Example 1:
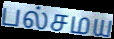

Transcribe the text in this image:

பல்சமய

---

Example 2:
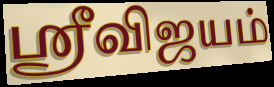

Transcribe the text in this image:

ஸ்ரீவிஜயம்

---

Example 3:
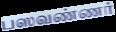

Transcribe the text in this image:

பஸவண்ணர்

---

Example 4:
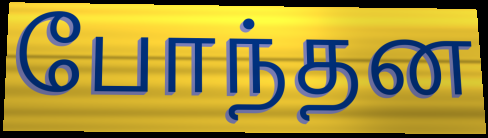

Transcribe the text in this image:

போந்தன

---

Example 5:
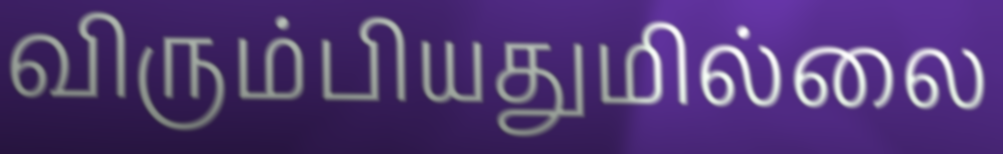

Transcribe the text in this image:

விரும்பியதுமில்லை